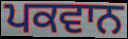
ਪਕਵਾਨ